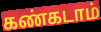
கண்கடாம்